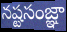
నష్టసంజ్ఞా